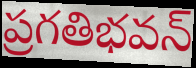
ప్రగతిభవన్